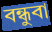
বন্ধুবা